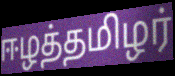
ஈழத்தமிழர்